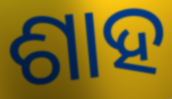
ଶାହ